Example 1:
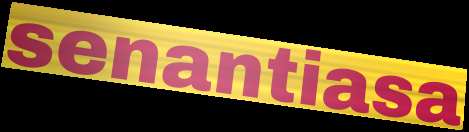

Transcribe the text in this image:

senantiasa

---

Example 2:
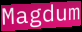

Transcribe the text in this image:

Magdum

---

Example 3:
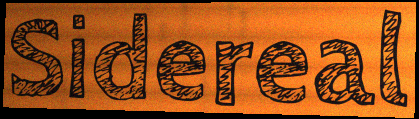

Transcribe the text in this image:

Sidereal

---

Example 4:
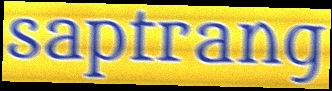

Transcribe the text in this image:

saptrang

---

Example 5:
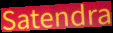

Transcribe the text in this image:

Satendra